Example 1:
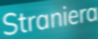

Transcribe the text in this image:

Straniera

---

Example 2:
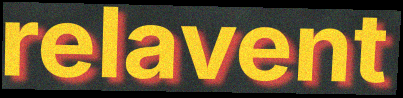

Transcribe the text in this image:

relavent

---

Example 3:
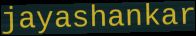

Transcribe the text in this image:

jayashankar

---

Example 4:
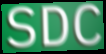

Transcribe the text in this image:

SDC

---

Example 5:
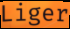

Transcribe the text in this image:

Liger